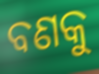
ବଣକୁ